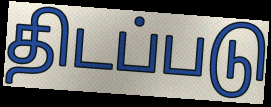
திடப்படு